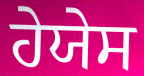
ਹੇਯੇਸ